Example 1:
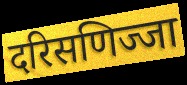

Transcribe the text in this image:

दरिसणिज्जा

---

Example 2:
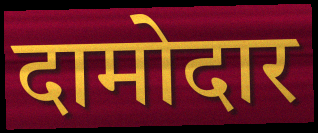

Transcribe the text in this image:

दामोदार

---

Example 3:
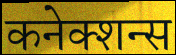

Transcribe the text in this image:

कनेक्शन्स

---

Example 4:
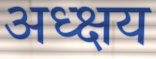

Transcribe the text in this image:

अध्क्षय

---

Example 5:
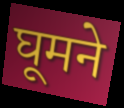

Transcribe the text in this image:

घूमने